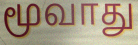
மூவாது